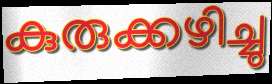
കുരുക്കഴിച്ചു